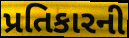
પ્રતિકારની